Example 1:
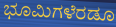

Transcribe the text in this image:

ಭೂಮಿಗಳೆರಡೂ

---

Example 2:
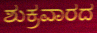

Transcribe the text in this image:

ಶುಕ್ರವಾರದ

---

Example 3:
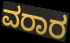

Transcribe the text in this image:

ವರಾರ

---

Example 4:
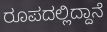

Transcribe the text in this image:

ರೂಪದಲ್ಲಿದ್ದಾನೆ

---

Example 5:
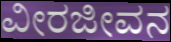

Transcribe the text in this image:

ವೀರಜೀವನ